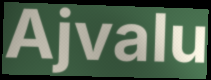
Ajvalu